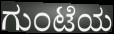
ಗುಂಟೆಯ